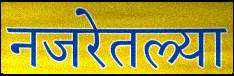
नजरेतल्या